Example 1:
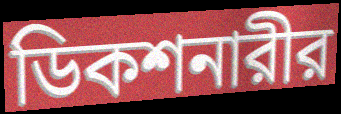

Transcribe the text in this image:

ডিকশনারীর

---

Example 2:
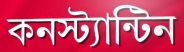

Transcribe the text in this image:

কনস্ট্যান্টিন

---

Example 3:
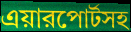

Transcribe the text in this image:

এয়ারপোর্টসহ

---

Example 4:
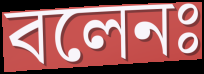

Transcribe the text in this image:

বলেনঃ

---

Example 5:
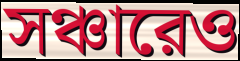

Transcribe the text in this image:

সঞ্চারেও